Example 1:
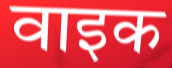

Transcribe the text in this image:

वाइक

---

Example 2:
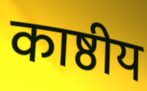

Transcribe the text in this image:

काष्ठीय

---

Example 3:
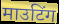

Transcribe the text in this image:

माउटिंग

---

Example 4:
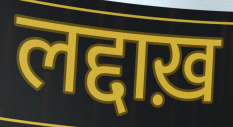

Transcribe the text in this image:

लद्दाख़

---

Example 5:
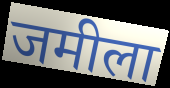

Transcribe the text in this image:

जमीला